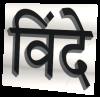
विंदे